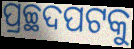
ପ୍ରଚ୍ଛଦପଟକୁ